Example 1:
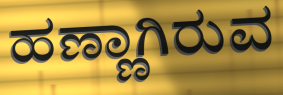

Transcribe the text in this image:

ಹಣ್ಣಾಗಿರುವ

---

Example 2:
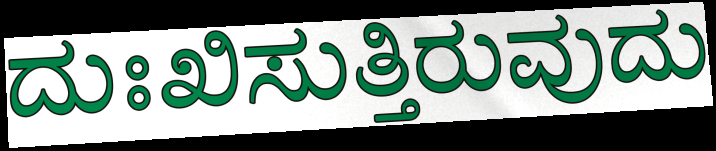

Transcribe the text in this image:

ದುಃಖಿಸುತ್ತಿರುವುದು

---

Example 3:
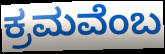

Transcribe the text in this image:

ಕ್ರಮವೆಂಬ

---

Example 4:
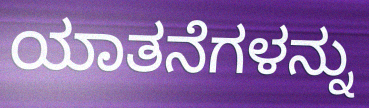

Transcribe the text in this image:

ಯಾತನೆಗಳನ್ನು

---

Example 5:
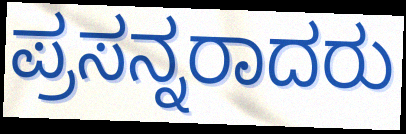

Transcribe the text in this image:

ಪ್ರಸನ್ನರಾದರು